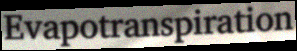
Evapotranspiration